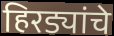
हिरड्यांचे